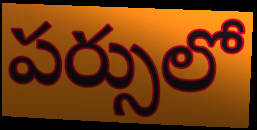
పర్సులో